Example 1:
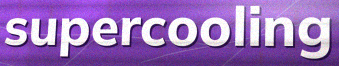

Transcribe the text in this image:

supercooling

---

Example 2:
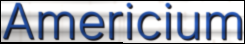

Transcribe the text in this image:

Americium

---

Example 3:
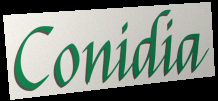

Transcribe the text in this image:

Conidia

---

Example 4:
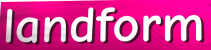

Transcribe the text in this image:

landform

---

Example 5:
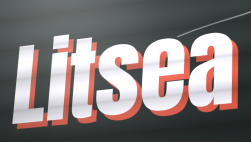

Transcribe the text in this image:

Litsea